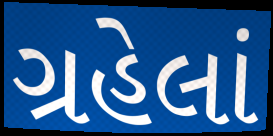
ગ્રહેલાં